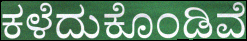
ಕಳೆದುಕೊಂಡಿವೆ